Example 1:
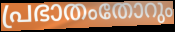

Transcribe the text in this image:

പ്രഭാതംതോറും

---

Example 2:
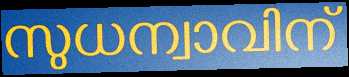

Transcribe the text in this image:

സുധന്വാവിന്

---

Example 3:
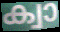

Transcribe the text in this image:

ക്വാ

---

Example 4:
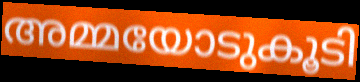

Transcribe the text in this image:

അമ്മയോടുകൂടി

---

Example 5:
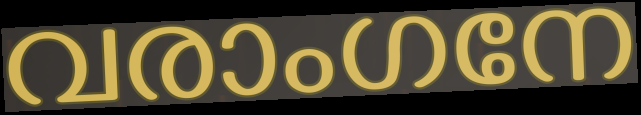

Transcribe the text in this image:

വരാംഗനേ